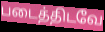
படைத்திடவே